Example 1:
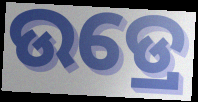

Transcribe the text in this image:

ଉଡ୍ରେ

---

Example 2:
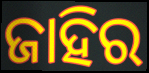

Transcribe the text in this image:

ଜାହିର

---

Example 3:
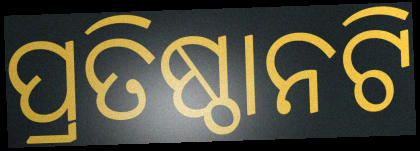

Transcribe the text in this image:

ପ୍ରତିଷ୍ଠାନଟି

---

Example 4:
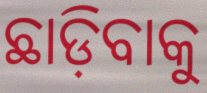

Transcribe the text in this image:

ଛାଡ଼ିବାକୁ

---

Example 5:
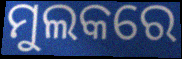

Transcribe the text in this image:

ମୁଲକରେ